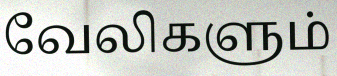
வேலிகளும்